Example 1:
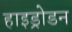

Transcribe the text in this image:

हाइड्रोडन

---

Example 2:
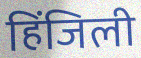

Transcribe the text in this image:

हिंजिली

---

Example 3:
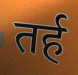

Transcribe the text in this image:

तर्ह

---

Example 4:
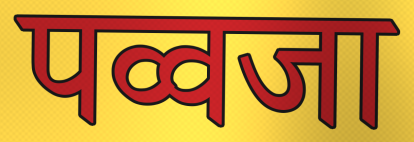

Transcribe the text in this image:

पव्वजा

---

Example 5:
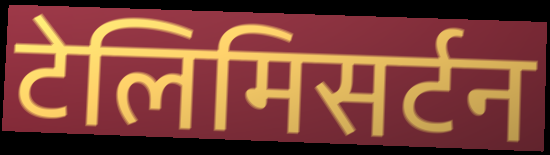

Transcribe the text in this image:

टेलिमिसर्टन